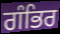
ਗੰਭਿਰ